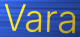
Vara